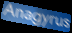
Anagyrus